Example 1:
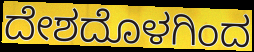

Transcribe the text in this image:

ದೇಶದೊಳಗಿಂದ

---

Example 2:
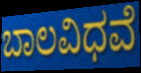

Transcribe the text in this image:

ಬಾಲವಿಧವೆ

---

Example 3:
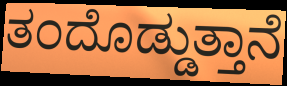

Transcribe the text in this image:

ತಂದೊಡ್ಡುತ್ತಾನೆ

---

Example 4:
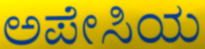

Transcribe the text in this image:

ಅಪೇಸಿಯ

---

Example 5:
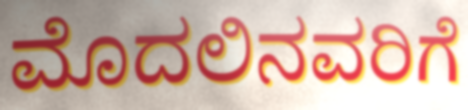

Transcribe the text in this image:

ಮೊದಲಿನವರಿಗೆ